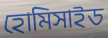
হোমিসাইড